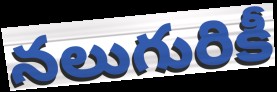
నలుగురికీ